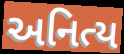
અનિત્ય